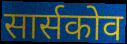
सार्सकोव